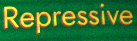
Repressive